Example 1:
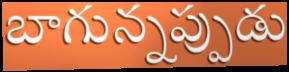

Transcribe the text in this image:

బాగున్నప్పుడు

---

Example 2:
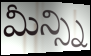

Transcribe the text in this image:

మీన్స్ని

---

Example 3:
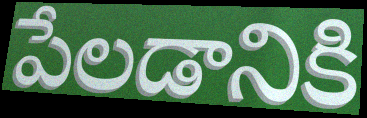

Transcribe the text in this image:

పేలడానికి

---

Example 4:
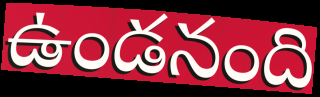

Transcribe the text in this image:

ఉండనంది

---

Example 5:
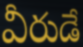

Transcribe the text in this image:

వీరుడే